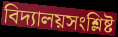
বিদ্যালয়সংশ্লিষ্ট